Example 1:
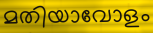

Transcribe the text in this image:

മതിയാവോളം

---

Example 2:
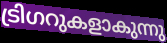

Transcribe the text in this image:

ട്രിഗറുകളാകുന്നു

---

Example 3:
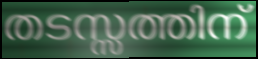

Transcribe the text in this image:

തടസ്സത്തിന്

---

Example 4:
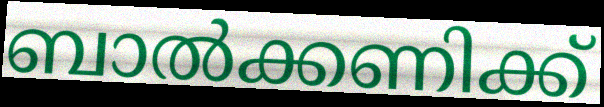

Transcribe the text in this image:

ബാൽക്കണിക്ക്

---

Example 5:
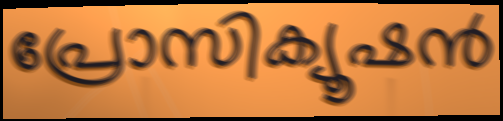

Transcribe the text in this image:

പ്രോസിക്യൂഷൻ